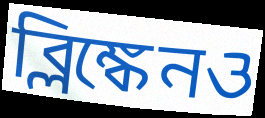
ব্লিঙ্কেনও